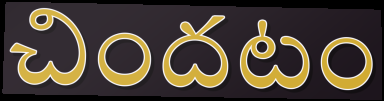
చిందటం